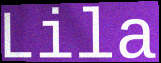
Lila